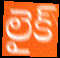
లైక్